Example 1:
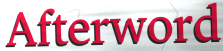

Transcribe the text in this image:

Afterword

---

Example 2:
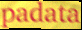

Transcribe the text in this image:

padata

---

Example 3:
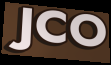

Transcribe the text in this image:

JCO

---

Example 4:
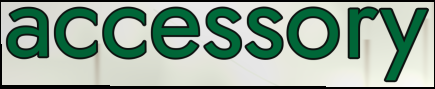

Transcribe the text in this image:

accessory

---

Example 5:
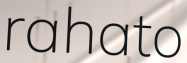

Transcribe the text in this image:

rahato